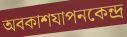
অবকাশযাপনকেন্দ্র